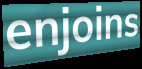
enjoins